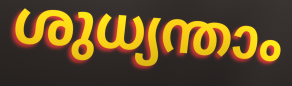
ശുധ്യന്താം